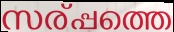
സര്പ്പത്തെ